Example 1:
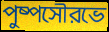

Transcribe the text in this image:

পুষ্পসৌরভে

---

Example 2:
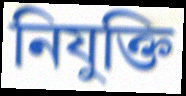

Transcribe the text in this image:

নিযুক্তি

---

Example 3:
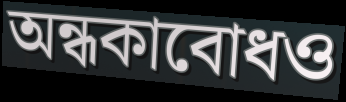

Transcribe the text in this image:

অন্ধকাবোধও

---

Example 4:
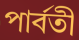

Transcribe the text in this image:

পার্বতী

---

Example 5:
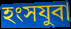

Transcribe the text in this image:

হংসযুবা